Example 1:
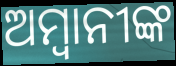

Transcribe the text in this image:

ଅମ୍ବାନୀଙ୍କ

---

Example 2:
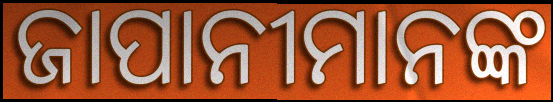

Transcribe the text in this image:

ଜାପାନୀମାନଙ୍କ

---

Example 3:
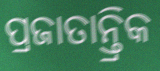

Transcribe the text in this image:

ପ୍ରଜାତାନ୍ତ୍ରିକ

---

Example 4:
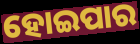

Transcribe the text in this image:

ହୋଇପାର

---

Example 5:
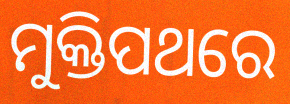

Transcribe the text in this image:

ମୁକ୍ତିପଥରେ